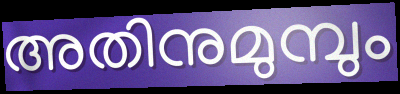
അതിനുമുമ്പും